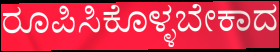
ರೂಪಿಸಿಕೊಳ್ಳಬೇಕಾದ